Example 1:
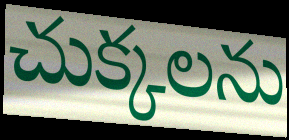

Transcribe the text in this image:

చుక్కలను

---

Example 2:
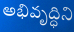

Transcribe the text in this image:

అభివృద్ధిని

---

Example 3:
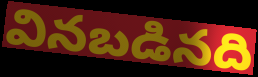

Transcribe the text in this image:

వినబడినది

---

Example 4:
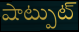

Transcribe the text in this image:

షాట్పుట్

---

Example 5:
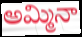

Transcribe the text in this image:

అమ్మినా